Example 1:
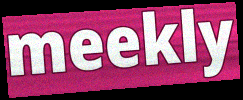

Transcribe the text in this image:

meekly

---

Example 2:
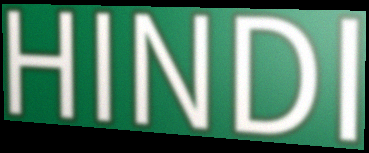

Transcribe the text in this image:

HINDI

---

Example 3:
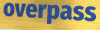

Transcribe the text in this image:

overpass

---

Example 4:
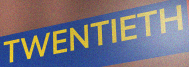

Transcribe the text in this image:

TWENTIETH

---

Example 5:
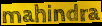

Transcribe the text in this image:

mahindra